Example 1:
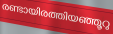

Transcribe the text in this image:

രണ്ടായിരത്തിയഞ്ഞൂറു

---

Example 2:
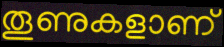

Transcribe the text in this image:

തൂണുകളാണ്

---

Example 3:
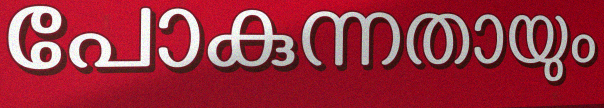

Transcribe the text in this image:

പോകുന്നതായും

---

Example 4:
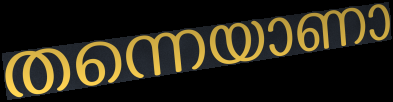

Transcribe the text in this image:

തന്നെയാണാ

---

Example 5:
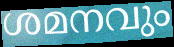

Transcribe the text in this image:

ശമനവും